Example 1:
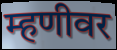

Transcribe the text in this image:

म्हणीवर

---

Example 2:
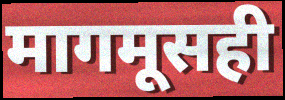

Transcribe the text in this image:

मागमूसही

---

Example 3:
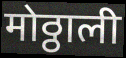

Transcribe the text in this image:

मोठ्ठाली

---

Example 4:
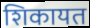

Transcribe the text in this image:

शिकायत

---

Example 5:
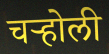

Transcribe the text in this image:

चऱ्होली